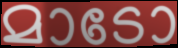
മാടോ